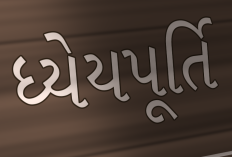
ધ્યેયપૂર્તિ